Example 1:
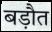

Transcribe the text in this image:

बड़ौत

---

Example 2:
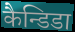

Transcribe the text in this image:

कैन्डिडा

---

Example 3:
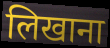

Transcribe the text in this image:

लिखाना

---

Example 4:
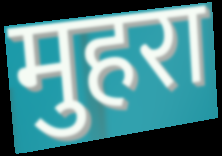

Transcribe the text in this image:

मुहरा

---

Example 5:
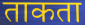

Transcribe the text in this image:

ताकता